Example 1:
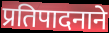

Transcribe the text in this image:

प्रतिपादनाने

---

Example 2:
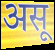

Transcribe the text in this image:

असू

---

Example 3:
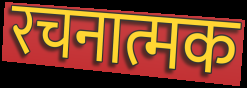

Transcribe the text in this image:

रचनात्मक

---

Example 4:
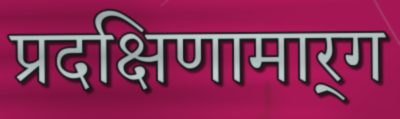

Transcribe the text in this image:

प्रदक्षिणामार्ग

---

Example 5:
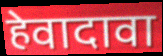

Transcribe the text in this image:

हेवादावा